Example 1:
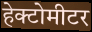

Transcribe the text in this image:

हेक्टोमीटर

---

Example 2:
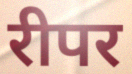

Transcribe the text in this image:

रीपर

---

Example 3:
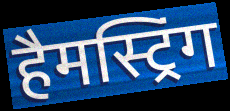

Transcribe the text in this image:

हैमस्ट्रिंग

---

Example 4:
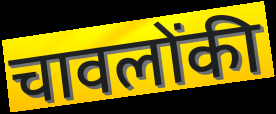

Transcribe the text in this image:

चावलोंकी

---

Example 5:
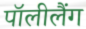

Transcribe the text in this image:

पॉलीलैंग